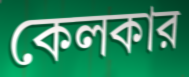
কেলকার